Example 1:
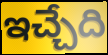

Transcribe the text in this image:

ఇచ్చేది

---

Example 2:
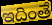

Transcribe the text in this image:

ఇదింతే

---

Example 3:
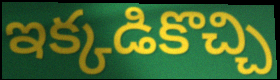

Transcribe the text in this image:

ఇక్కడికొచ్చి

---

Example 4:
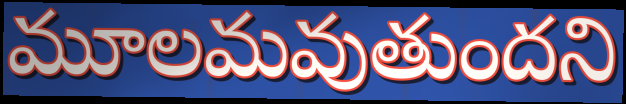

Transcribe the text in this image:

మూలమవుతుందని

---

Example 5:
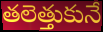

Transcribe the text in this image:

తలెత్తుకునే